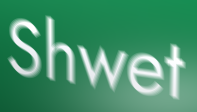
Shwet